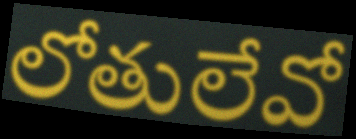
లోతులేవో